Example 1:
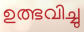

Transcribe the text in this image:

ഉത്ഭവിച്ചു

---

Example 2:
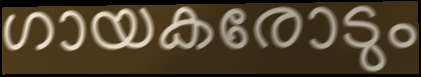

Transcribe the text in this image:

ഗായകരോടും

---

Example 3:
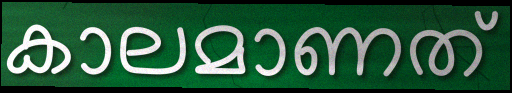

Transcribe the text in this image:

കാലമാണത്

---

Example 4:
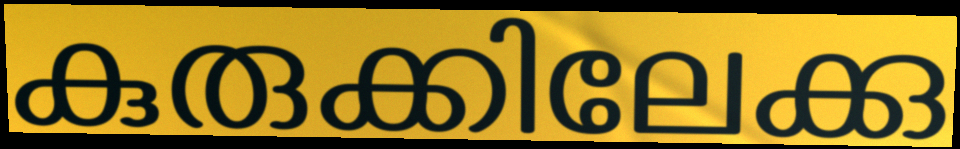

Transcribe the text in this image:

കുരുക്കിലേക്കു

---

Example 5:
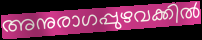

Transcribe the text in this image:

അനുരാഗപ്പുഴവക്കിൽ